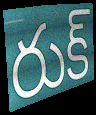
రుక్